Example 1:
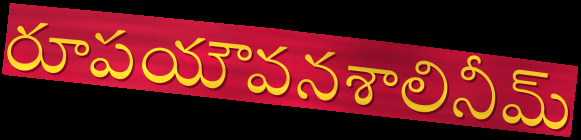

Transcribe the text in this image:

రూపయౌవనశాలినీమ్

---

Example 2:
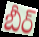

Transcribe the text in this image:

బీర్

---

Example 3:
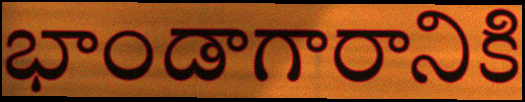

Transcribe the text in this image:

భాండాగారానికి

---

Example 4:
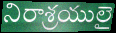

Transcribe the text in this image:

నిరాశ్రయులై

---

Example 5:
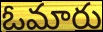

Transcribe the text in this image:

ఓమారు